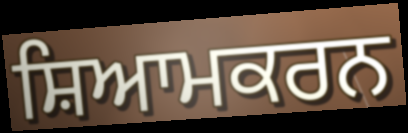
ਸ਼ਿਆਮਕਰਨ